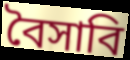
বৈসাবি